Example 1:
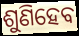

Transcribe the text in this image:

ଶୁଣିହେବ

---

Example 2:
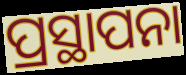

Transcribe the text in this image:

ପ୍ରସ୍ଥାପନା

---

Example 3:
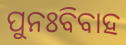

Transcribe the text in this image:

ପୁନଃବିବାହ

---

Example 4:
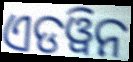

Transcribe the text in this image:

ଏଡୱିନ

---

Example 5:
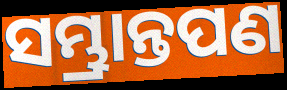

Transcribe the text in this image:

ସମ୍ଭ୍ରାନ୍ତପଣ